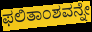
ಫಲಿತಾಂಶವನ್ನೇ